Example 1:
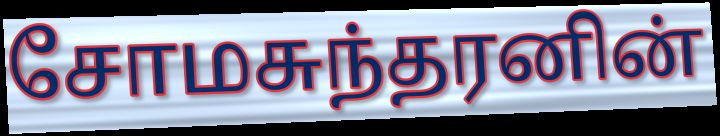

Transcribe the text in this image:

சோமசுந்தரனின்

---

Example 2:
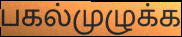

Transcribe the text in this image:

பகல்முழுக்க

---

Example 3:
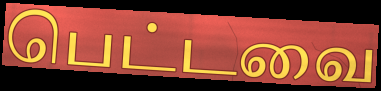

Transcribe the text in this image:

பெட்டவை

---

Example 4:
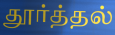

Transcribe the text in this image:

தூர்த்தல்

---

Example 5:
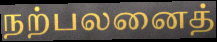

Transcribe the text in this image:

நற்பலனைத்